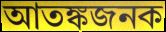
আতঙ্কজনক